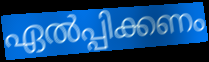
ഏൽപ്പിക്കണം